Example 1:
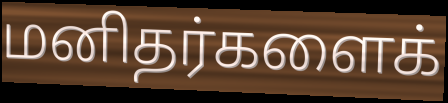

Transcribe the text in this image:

மனிதர்களைக்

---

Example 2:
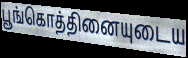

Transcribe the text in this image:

பூங்கொத்தினையுடைய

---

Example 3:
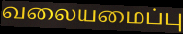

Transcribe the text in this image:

வலையமைப்பு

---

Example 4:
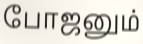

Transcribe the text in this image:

போஜனும்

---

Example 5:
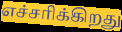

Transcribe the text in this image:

எச்சரிக்கிறது